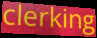
clerking